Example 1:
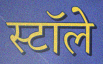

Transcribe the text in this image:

स्टॉले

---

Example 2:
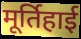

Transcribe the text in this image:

मूर्तिहाई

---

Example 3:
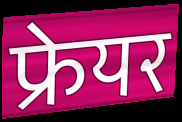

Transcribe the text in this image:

फ्रेयर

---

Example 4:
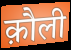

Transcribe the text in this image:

क़ौली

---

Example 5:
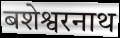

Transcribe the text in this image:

बशेश्वरनाथ